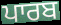
ਪਾਰਬ